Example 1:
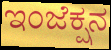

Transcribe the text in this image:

ಇಂಜೆಕ್ಷನ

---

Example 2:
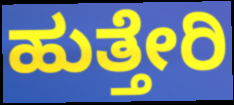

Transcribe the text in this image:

ಹುತ್ತೇರಿ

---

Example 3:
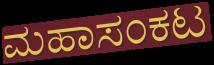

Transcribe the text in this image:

ಮಹಾಸಂಕಟ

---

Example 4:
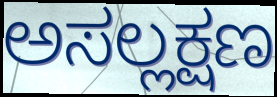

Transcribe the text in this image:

ಅಸಲ್ಲಕ್ಷಣ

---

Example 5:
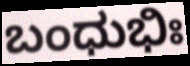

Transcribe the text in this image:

ಬಂಧುಭಿಃ